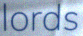
lords